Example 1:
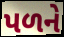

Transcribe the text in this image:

પળને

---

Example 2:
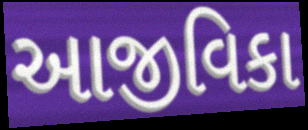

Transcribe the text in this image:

આજીવિકા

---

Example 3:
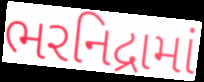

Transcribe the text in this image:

ભરનિદ્રામાં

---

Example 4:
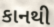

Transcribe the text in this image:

કાનથી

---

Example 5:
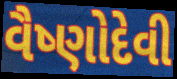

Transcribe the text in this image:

વૈષ્ણોદેવી